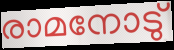
രാമനോടു്